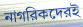
নাগরিকদেরই